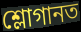
শ্লোগানত